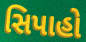
સિપાહો